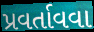
પ્રવર્તાવવા